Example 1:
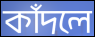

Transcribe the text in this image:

কাঁদলে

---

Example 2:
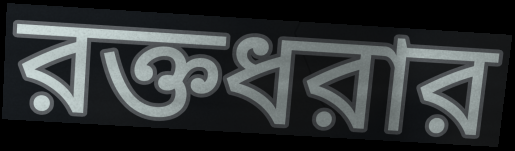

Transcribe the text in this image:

রক্তধরার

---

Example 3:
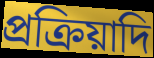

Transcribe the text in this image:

প্রক্রিয়াদি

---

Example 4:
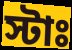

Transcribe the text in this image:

স্টাঃ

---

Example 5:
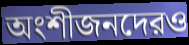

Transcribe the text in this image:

অংশীজনদেরও